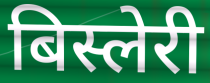
बिस्लेरी